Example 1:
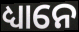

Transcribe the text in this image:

ଧ୍ୟାନେ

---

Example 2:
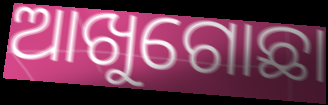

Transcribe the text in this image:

ଆଖୁଗୋଛା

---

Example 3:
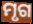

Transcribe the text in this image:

ମୃଗ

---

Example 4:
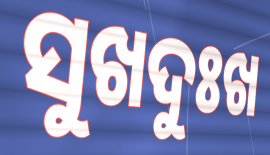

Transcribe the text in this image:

ସୁଖଦୁଃଖ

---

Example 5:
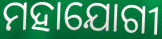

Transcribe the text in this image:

ମହାଯୋଗୀ